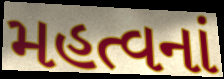
મહત્વનાં